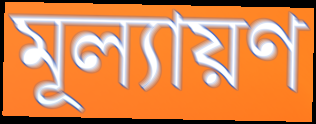
মূল্যায়ণ